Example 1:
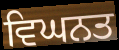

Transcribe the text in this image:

ਵਿਘਨਤ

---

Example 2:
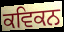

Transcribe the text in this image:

ਕਵਿਕਨ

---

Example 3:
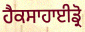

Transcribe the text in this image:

ਹੈਕਸਾਹਾਈਡ੍ਰੋ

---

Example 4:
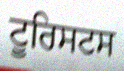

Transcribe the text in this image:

ਟੂਰਿਸਟਸ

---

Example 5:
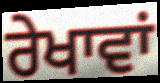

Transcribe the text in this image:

ਰੇਖਾਵਾਂ